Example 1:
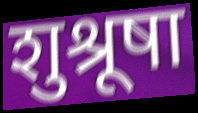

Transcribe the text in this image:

शुश्रूषा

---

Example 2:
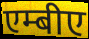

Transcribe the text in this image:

एम्बीए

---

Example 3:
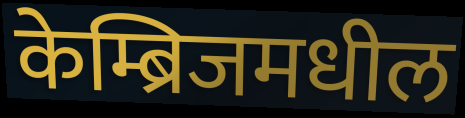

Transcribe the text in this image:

केम्ब्रिजमधील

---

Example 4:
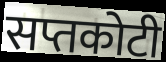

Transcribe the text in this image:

सप्तकोटी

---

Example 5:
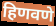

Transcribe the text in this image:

हिणवणे